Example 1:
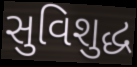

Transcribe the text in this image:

સુવિશુદ્ધ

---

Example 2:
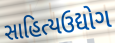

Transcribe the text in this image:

સાહિત્યઉદ્યોગ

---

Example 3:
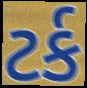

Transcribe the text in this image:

ટર્ક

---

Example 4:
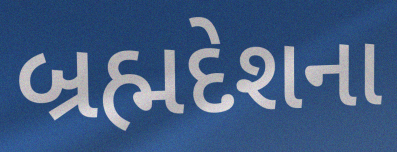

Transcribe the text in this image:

બ્રહ્મદેશના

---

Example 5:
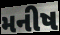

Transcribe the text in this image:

મનીષ